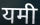
यमी